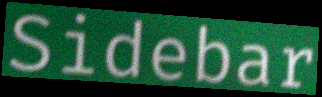
Sidebar